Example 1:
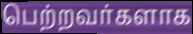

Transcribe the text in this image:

பெற்றவர்களாக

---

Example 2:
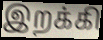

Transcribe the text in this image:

இறக்கி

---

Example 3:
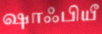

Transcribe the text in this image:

ஷாஃபியீ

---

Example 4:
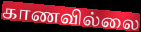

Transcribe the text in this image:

காணவில்லை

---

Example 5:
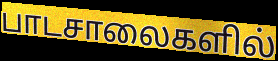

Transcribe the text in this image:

பாடசாலைகளில்